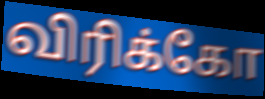
விரிக்கோ